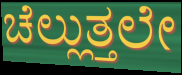
ಚೆಲ್ಲುತ್ತಲೇ